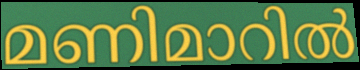
മണിമാറിൽ